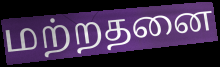
மற்றதனை